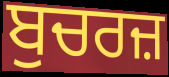
ਬੁਚਰਜ਼